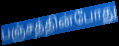
பஞ்சத்தின்போது